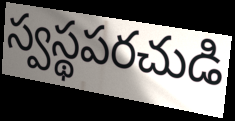
స్వస్థపరచుడి